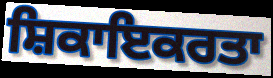
ਸ਼ਿਕਾਇਕਰਤਾ